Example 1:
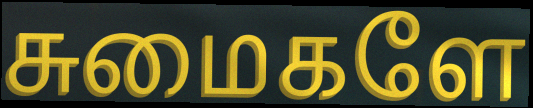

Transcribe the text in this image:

சுமைகளே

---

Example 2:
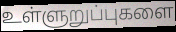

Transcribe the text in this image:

உள்ளுறுப்புகளை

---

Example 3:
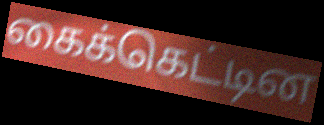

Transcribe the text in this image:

கைக்கெட்டின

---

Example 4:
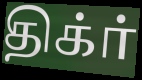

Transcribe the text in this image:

திக்ர்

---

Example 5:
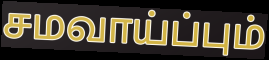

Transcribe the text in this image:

சமவாய்ப்பும்